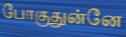
போகுதுன்னே